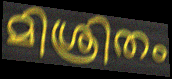
മിശ്രിതം